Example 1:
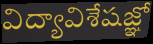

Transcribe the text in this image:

విద్యావిశేషజ్ఞో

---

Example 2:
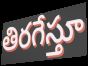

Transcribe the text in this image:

తిరగేస్తూ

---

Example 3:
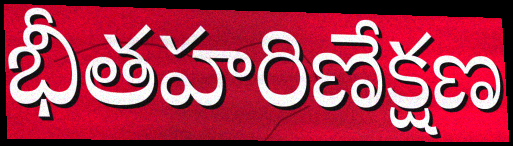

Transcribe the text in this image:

భీతహరిణేక్షణ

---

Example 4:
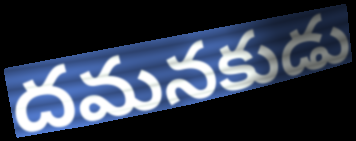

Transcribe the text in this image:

దమనకుడు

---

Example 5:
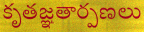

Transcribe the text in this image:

కృతజ్ఞతార్పణలు